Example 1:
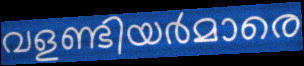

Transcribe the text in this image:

വളണ്ടിയർമാരെ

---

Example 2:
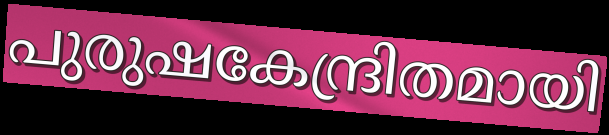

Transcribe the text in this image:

പുരുഷകേന്ദ്രിതമായി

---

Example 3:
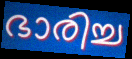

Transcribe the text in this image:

ഭാരിച്ച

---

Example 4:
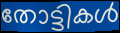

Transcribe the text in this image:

തോട്ടികൾ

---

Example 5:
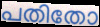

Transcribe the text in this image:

പതിതോ